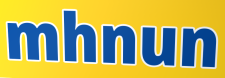
mhnun